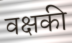
वक्षकी